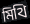
মিথি